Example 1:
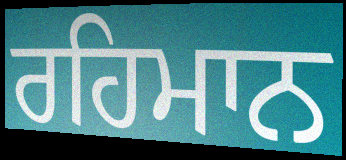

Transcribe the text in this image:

ਰਹਿਮਾਨ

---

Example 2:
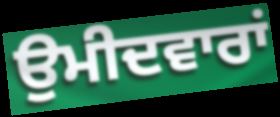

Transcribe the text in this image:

ਉਮੀਦਵਾਰਾਂ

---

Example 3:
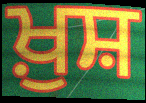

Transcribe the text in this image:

ਖ਼ੁਸ਼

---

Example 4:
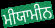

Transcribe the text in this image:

ਮੀਯਾਮੀਨ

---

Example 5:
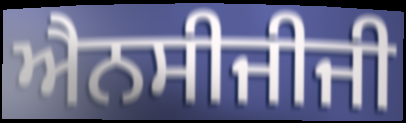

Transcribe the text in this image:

ਐਨਸੀਜੀਜੀ